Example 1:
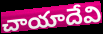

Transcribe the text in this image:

చాయాదేవి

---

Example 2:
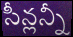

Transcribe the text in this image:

సీన్లన్నీ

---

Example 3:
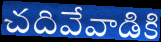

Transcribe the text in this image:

చదివేవాడికి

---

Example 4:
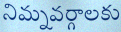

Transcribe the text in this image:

నిమ్నవర్గాలకు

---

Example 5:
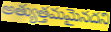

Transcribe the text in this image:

అత్యుత్తమమైనదని